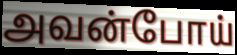
அவன்போய்